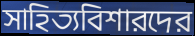
সাহিত্যবিশারদের